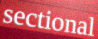
sectional